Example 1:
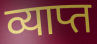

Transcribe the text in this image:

व्‍याप्‍त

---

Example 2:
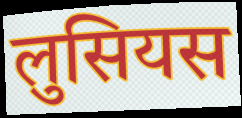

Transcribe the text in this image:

लुसियस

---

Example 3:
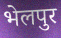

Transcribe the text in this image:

भेलपुर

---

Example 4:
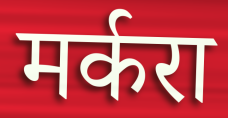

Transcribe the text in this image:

मर्करा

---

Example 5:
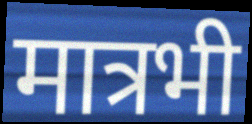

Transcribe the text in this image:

मात्रभी